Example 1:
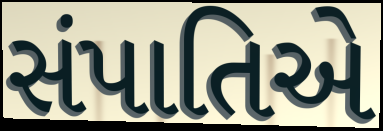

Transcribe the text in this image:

સંપાતિએ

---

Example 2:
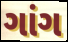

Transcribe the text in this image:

ગાંગ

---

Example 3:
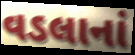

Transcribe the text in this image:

વડલાનાં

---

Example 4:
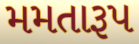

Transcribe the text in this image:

મમતારૂપ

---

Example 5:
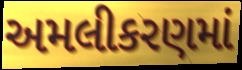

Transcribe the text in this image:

અમલીકરણમાં